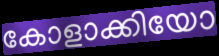
കോളാക്കിയോ